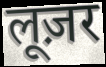
लूज़र